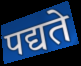
पद्यते